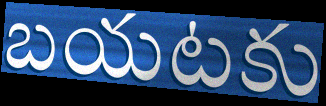
బయటకు